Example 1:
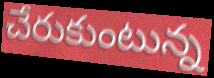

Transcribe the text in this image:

చేరుకుంటున్న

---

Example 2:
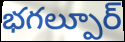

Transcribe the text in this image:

భగల్పూర్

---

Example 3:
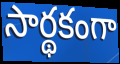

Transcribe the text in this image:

సార్థకంగా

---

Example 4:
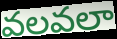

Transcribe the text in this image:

వలవలా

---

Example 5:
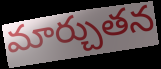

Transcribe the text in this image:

మార్చుతన